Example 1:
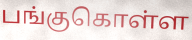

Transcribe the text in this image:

பங்குகொள்ள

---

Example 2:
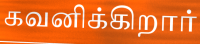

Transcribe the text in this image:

கவனிக்கிறார்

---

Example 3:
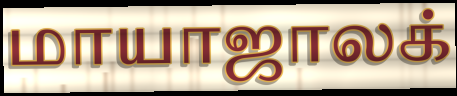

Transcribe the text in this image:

மாயாஜாலக்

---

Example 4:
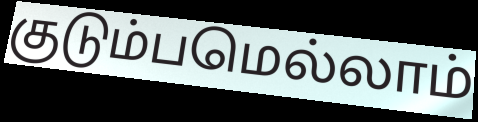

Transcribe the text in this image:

குடும்பமெல்லாம்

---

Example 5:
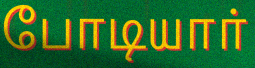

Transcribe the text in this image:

போடியார்